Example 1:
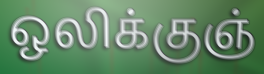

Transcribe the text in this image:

ஒலிக்குஞ்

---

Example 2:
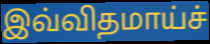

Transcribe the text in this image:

இவ்விதமாய்ச்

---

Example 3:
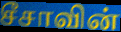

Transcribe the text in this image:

சீசாவின்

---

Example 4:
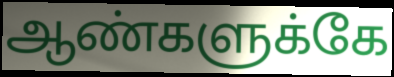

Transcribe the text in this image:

ஆண்களுக்கே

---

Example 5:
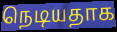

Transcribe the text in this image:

நெடியதாக